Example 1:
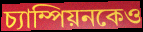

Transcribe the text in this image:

চ্যাম্পিয়নকেও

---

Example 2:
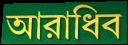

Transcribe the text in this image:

আরাধিব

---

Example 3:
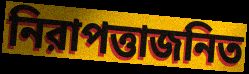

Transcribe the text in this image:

নিরাপত্তাজনিত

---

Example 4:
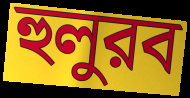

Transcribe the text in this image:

হুলুরব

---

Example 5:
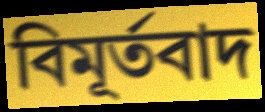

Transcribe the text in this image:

বিমূর্তবাদ